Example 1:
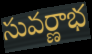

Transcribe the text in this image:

సువర్ణాభ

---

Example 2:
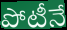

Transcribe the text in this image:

పోటీనే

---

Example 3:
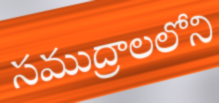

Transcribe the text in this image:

సముద్రాలలోని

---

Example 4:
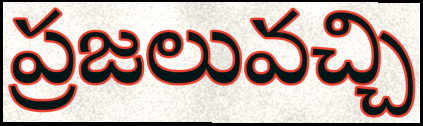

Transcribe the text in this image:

ప్రజలువచ్చి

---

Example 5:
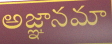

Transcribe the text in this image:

అజ్ఞానమా